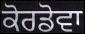
ਕੋਰਡੋਵਾ